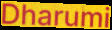
Dharumi